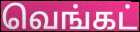
வெங்கட்